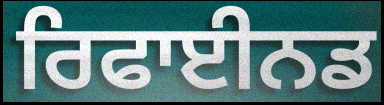
ਰਿਫਾਈਨਡ